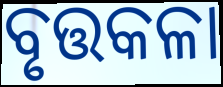
ବୃତ୍ତକଳା